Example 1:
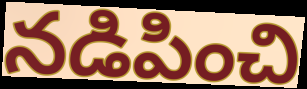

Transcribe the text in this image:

నడిపించి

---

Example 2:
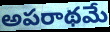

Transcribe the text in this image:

అపరాథమే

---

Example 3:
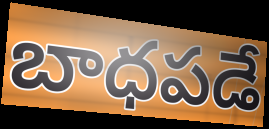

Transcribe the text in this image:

బాధపడే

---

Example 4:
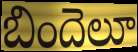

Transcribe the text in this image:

బిందెలూ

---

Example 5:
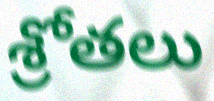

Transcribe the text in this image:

శ్రోతలు